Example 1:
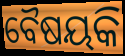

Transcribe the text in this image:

ବୈଷୟକି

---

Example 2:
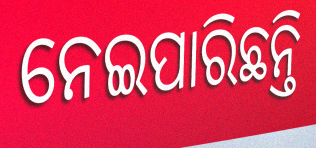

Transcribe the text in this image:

ନେଇପାରିଛନ୍ତି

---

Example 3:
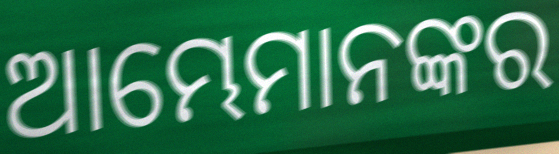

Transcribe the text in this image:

ଆମ୍ଭେମାନଙ୍କର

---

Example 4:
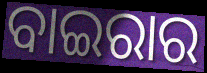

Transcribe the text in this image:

ବାଇରାର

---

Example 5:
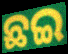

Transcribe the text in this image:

ଛଇ